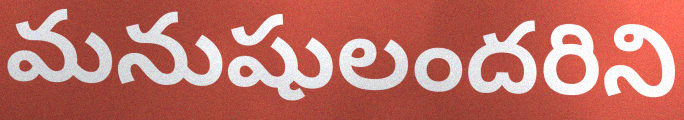
మనుషులందరిని